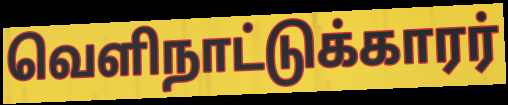
வெளிநாட்டுக்காரர்